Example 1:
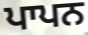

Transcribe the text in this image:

ਪਾਪਨ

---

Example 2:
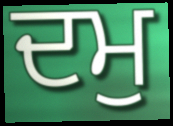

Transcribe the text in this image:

ਦਮੁ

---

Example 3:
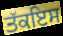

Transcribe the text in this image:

ਤੱਕਇਸ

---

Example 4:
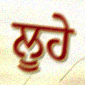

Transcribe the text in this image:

ਲੂਹੇ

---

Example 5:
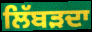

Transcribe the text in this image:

ਲਿੱਬੜਦਾ